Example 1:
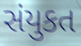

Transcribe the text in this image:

સંયુકત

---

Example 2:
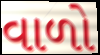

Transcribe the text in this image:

વાળો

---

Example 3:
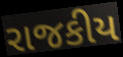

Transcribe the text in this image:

રાજકીય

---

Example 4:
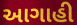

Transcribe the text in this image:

આગાહી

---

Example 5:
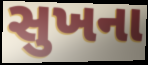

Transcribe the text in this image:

સુખના